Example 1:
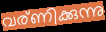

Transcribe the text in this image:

വര്ണിക്കുന്നു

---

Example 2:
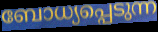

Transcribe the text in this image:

ബോധ്യപ്പെടുന്ന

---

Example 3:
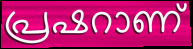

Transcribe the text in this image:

പ്രഷറാണ്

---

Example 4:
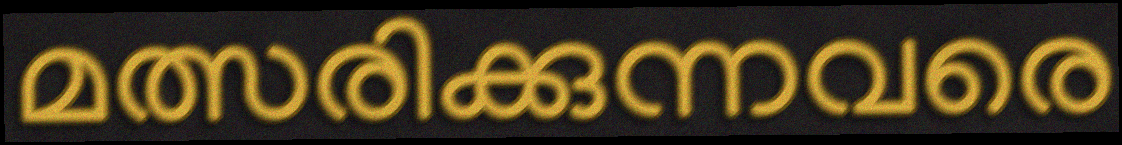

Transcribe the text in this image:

മത്സരിക്കുന്നവരെ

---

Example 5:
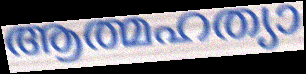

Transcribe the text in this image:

ആത്മഹത്യാ